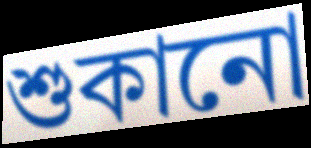
শুকানো